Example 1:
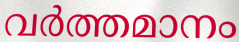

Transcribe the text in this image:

വർത്തമാനം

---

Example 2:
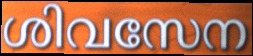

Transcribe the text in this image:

ശിവസേന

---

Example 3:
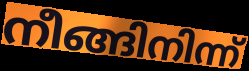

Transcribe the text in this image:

നീങ്ങിനിന്ന്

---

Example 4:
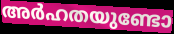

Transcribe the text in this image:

അർഹതയുണ്ടോ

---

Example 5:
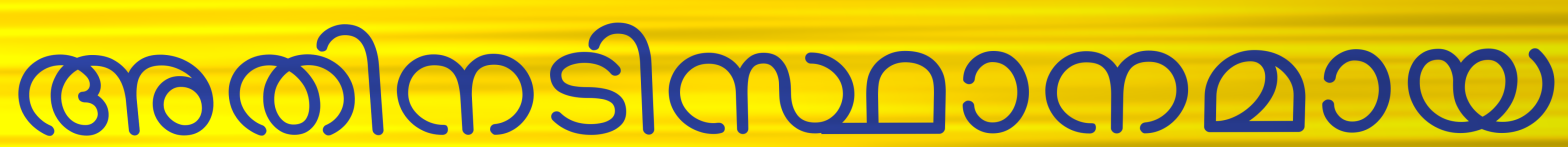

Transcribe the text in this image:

അതിനടിസ്ഥാനമായ